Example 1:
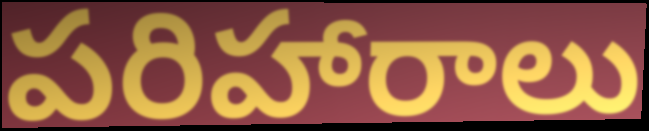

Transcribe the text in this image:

పరిహారాలు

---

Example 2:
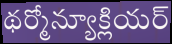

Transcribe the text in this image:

థర్మోన్యూక్లియర్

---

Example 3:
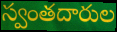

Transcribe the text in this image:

స్వంతదారుల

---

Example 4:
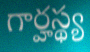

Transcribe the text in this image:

గార్హస్థ్య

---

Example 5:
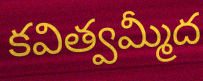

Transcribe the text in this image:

కవిత్వమ్మీద